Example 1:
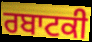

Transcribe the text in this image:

ਰਬਾਟਕੀ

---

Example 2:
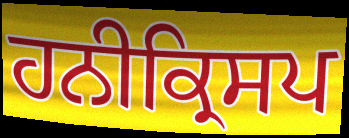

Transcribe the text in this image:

ਹਨੀਕ੍ਰਿਸਪ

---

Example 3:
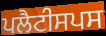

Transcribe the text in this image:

ਪਲੈਟੀਸਪਸ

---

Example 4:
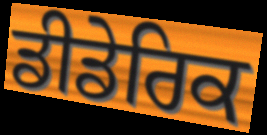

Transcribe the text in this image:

ਡੀਡੇਰਿਕ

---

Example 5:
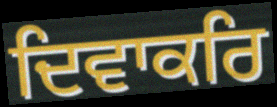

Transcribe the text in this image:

ਦਿਵਾਕਰਿ